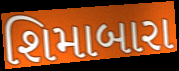
શિમાબારા